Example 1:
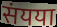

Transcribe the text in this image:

संयया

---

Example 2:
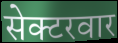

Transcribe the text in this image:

सेक्टरवार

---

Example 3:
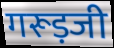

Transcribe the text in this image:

गरूड़जी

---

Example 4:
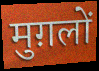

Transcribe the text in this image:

मुग़लों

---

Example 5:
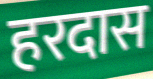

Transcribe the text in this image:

हरदास